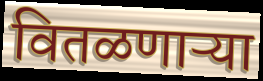
वितळणाऱ्या